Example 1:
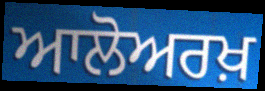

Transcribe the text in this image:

ਆਲੋਅਰਖ਼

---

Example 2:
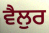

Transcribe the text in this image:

ਵੈਲੁਰ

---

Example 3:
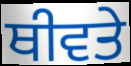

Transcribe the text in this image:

ਥੀਵਤੇ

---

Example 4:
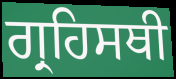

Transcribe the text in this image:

ਗ੍ਰਹਿਸਥੀ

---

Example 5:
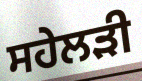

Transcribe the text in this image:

ਸਹੇਲੜੀ